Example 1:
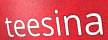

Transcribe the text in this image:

teesina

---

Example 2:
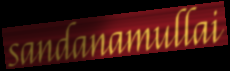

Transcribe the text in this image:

sandanamullai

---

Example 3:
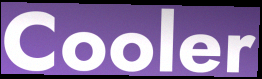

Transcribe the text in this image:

Cooler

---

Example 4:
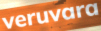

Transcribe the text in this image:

veruvara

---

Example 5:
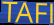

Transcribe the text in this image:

TAFI